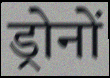
ड्रोनों